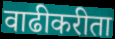
वाढीकरीता